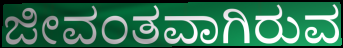
ಜೀವಂತವಾಗಿರುವ